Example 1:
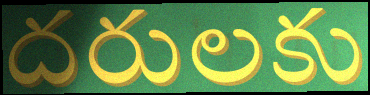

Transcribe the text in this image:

దరులకు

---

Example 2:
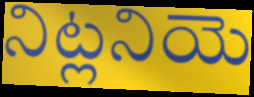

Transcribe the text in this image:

నిట్లనియె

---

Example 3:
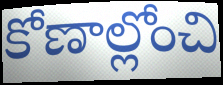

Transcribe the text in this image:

కోణాల్లోంచి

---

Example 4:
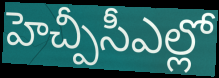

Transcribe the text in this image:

హెచ్పీసీఎల్లో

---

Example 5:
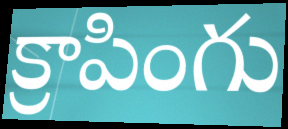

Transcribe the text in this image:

క్రాపింగు